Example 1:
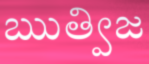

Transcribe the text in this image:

ఋత్విజ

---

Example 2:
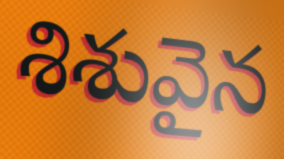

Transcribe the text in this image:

శిశువైన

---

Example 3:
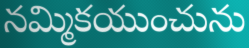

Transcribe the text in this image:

నమ్మికయుంచును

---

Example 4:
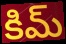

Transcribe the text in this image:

కిమ్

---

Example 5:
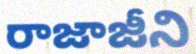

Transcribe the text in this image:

రాజాజీని